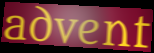
advent